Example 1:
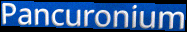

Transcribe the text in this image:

Pancuronium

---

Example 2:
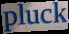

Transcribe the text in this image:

pluck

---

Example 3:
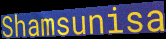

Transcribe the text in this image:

Shamsunisa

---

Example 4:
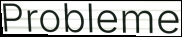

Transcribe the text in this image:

Probleme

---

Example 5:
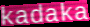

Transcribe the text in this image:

kadaka